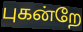
புகன்றே